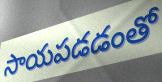
సాయపడడంతో